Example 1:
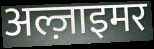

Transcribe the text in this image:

अल्ज़ाइमर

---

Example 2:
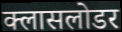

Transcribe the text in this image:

क्लासलोडर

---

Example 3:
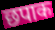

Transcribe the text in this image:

छपाक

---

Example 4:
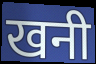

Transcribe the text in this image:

खनी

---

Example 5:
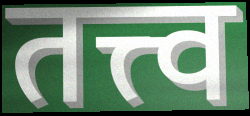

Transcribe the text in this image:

तत्त्व